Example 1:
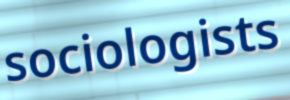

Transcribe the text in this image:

sociologists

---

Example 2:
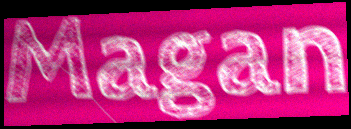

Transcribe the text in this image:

Magan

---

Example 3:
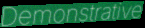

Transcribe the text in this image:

Demonstrative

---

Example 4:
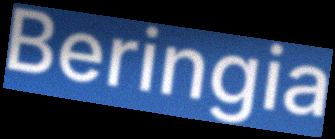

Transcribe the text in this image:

Beringia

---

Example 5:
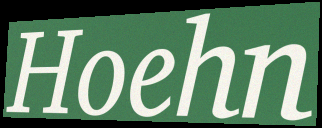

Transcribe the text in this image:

Hoehn